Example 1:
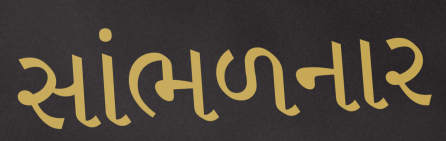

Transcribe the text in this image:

સાંભળનાર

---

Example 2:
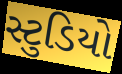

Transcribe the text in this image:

સ્ટુડિયો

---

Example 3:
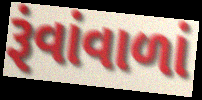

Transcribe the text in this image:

રૂંવાંવાળાં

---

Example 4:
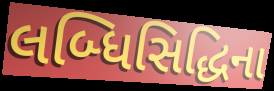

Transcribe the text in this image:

લબ્ધિસિદ્ધિના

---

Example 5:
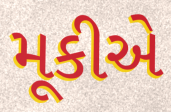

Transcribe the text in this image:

મૂકીએ